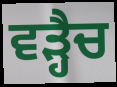
ਵੜ੍ਹੈਚ